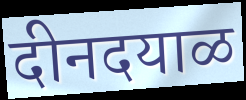
दीनदयाळ